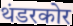
थंडरकोर